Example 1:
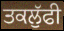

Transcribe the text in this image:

ਤਕਲੁੱਫੀ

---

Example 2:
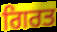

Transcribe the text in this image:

ਗਿਰਤ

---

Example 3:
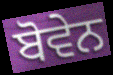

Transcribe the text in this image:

ਬੋਵੇਨ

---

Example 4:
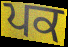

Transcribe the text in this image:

ਪਕ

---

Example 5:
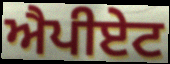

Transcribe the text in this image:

ਐਪੀਏਟ